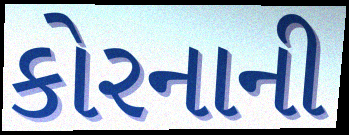
કોરનાની